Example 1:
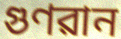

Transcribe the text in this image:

গুণৱান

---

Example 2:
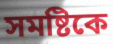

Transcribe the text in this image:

সমষ্টিকে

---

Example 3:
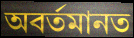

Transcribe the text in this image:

অবৰ্তমানত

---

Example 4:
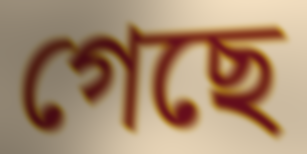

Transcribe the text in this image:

গেছে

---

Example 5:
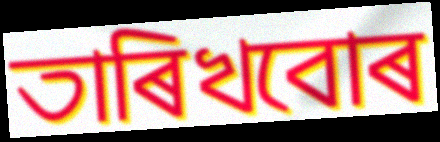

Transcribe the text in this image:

তাৰিখবোৰ